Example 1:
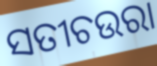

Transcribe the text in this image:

ସତୀଚଉରା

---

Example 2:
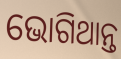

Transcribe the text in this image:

ଭୋଗିଥାନ୍ତ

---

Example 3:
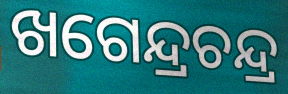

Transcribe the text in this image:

ଖଗେନ୍ଦ୍ରଚନ୍ଦ୍ର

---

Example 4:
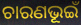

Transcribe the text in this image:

ଚାରଣଭୂଇଁ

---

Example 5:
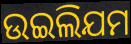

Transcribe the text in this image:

ଉଇଲିଯମ